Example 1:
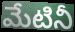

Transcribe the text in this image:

మేటినీ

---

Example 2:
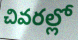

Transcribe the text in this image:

చివరల్లో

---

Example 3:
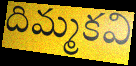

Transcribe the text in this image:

దిమ్మకవి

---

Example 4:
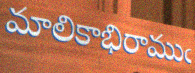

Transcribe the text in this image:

మాలికాభిరాముఁ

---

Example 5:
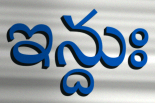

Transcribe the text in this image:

ఇన్దుః